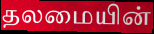
தலமையின்